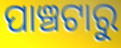
ପାଞ୍ଚଟାରୁ